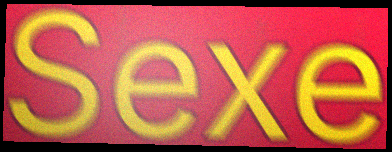
Sexe